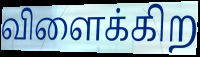
விளைக்கிற